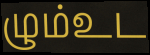
ழும்உட